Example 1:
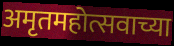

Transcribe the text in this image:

अमृतमहोत्सवाच्या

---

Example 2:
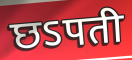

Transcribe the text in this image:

छऽपती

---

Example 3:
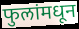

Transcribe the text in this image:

फुलांमधून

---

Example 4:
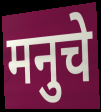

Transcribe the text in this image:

मनुचे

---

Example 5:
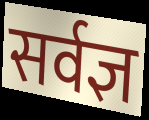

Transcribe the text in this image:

सर्वज्ञ